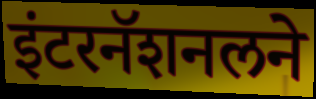
इंटरनॅशनलने